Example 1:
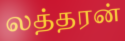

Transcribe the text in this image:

லத்தரன்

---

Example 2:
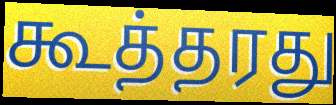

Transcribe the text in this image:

கூத்தரது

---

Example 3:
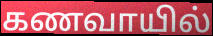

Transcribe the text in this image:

கணவாயில்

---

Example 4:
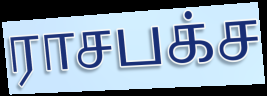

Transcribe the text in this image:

ராசபக்ச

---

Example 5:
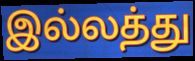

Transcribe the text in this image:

இல்லத்து